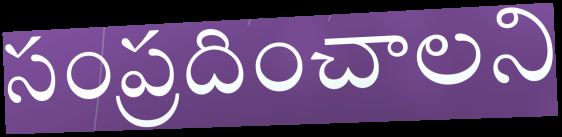
సంప్రదించాలని